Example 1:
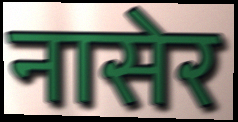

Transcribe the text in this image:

नासेर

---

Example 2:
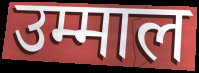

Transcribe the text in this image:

उम्माल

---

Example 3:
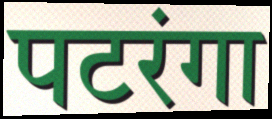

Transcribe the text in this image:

पटरंगा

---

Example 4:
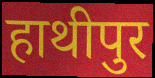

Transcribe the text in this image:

हाथीपुर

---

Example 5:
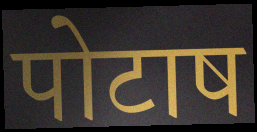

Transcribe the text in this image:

पोटाष